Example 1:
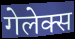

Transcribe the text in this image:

गेलेक्स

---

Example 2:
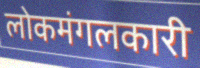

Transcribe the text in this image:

लोकमंगलकारी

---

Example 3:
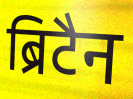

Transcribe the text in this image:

ब्रिटैन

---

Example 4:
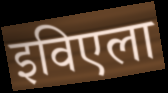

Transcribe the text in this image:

इविएला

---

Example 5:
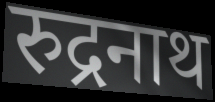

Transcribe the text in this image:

रुद्रनाथ